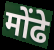
मोंढे